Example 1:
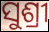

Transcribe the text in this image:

ସୁଶ୍ରୀ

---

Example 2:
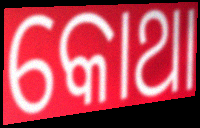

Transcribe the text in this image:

କୋଥା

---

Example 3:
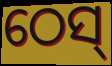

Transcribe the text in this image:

ଠେସ୍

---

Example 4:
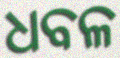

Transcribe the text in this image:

ଧବଳ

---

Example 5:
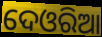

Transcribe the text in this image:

ଦେଓରିଆ